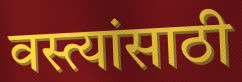
वस्त्यांसाठी